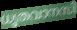
ധൃതവാനസി